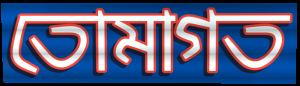
তোমাগত